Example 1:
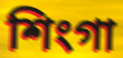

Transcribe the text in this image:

শিংগা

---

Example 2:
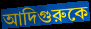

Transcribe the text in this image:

আদিগুরুকে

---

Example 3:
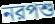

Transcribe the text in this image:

নরপশু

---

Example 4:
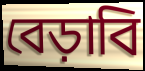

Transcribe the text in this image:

বেড়াবি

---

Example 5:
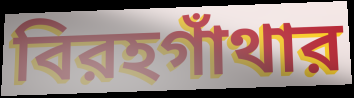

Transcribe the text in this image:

বিরহগাঁথার